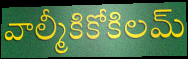
వాల్మీకికోకిలమ్